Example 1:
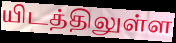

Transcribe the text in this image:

யிடத்திலுள்ள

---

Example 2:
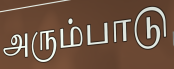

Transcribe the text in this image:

அரும்பாடு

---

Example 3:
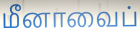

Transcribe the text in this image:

மீனாவைப்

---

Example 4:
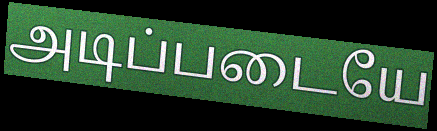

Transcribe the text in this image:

அடிப்படையே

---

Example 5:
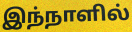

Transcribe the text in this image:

இந்நாளில்